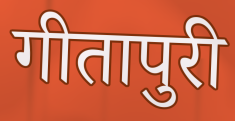
गीतापुरी